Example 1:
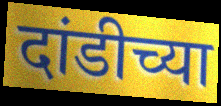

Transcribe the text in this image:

दांडीच्या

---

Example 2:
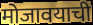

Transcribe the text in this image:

मोजावयाची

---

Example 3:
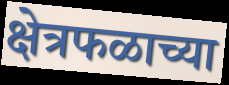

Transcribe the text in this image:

क्षेत्रफळाच्या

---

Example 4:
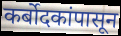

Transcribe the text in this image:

कर्बोदकांपासून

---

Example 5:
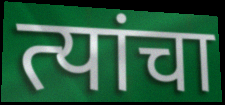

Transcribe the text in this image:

त्‍यांचा